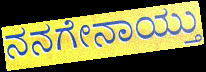
ನನಗೇನಾಯ್ತು